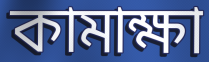
কামাক্ষা